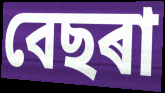
বেছৰা